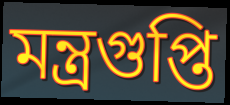
মন্ত্রগুপ্তি